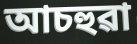
আচহুৱা